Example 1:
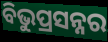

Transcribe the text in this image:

ବିଭୁପ୍ରସନ୍ନର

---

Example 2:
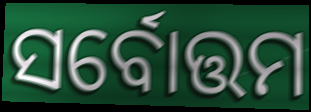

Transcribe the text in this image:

ସର୍ବୋତ୍ତମ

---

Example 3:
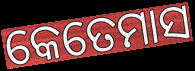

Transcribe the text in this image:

କେତେମାସ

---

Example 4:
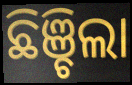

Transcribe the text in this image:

ଛିଞ୍ଚିଲା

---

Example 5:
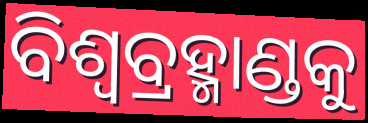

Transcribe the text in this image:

ବିଶ୍ବବ୍ରହ୍ମାଣ୍ଡକୁ